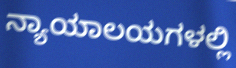
ನ್ಯಾಯಾಲಯಗಳಲ್ಲಿ